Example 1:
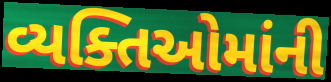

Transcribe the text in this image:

વ્યક્તિઓમાંની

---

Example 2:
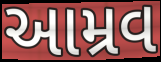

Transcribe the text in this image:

આમ્રવ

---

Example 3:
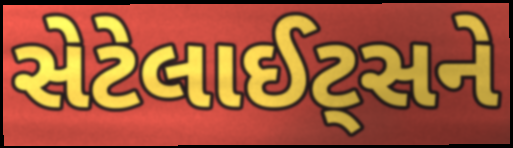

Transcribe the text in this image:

સેટેલાઈટ્સને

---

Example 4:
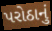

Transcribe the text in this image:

પરોઠાનું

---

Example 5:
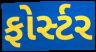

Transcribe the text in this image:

ફોર્સ્ટર